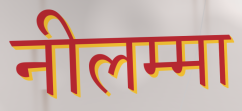
नीलम्मा